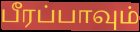
பீரப்பாவும்